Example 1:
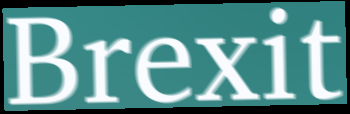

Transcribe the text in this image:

Brexit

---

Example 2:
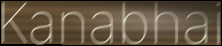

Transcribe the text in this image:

Kanabhai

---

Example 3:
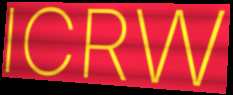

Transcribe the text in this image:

ICRW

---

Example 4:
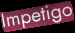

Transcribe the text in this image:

Impetigo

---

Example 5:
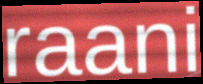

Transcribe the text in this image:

raani